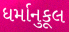
ધર્માનુકૂલ